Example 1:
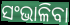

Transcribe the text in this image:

ସଂଭାଳିବା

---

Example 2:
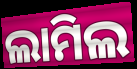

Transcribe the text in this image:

ଲାମିଲ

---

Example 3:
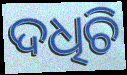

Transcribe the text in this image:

ଦଧିଚି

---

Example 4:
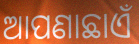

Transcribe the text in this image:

ଆପଣାଛାଏଁ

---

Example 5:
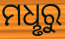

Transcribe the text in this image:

ମଧୢରୁ